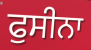
ਫੁਸੀਨਾ